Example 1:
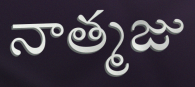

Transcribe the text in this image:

నాత్మజు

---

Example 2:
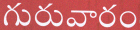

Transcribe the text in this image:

గురువారం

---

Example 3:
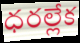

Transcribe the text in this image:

ధరల్లేక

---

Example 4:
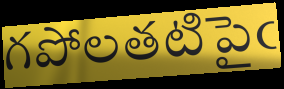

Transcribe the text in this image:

గపోలతటిపైఁ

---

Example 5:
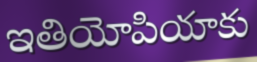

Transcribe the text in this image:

ఇతియోపియాకు